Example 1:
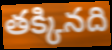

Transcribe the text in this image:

తక్కినది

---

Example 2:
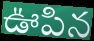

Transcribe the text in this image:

ఊపిన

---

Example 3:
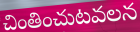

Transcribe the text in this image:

చింతించుటవలన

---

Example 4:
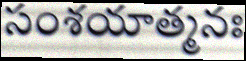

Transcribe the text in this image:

సంశయాత్మనః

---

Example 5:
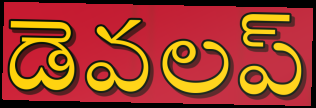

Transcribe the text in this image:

డెవలప్